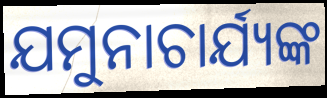
ଯମୁନାଚାର୍ଯ୍ୟଙ୍କ